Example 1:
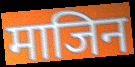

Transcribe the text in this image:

माजिन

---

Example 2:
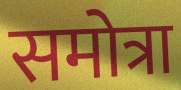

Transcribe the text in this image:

समोत्रा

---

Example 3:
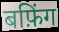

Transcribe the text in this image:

बफ़िंग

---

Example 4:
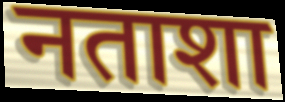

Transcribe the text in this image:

नताशा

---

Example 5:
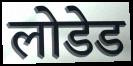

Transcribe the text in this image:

लोडेड